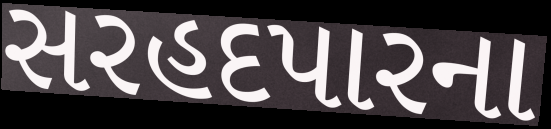
સરહદપારના